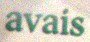
avais